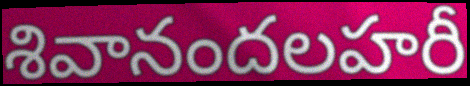
శివానందలహరీ